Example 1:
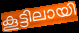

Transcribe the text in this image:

കൂട്ടിലായി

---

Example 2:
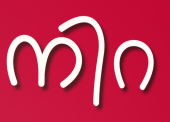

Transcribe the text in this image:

നിറ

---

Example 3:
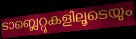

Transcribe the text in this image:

ടാബ്ലെറ്റുകളിലൂടെയും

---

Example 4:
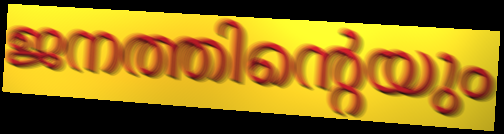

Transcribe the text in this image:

ജനത്തിന്റെയും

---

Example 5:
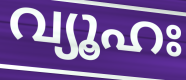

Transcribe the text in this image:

വ്യൂഹഃ